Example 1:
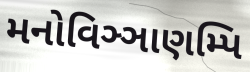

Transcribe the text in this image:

મનોવિઞ્ઞાણમ્પિ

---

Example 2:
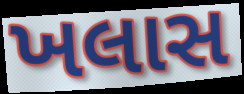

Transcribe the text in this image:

ખલાસ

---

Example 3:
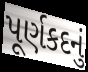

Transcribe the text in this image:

પૂર્ણકદનું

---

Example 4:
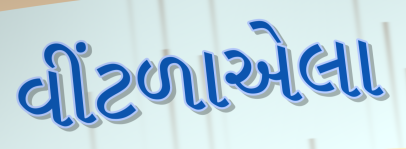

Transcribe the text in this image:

વીંટળાએલા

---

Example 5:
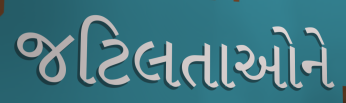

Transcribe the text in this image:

જટિલતાઓને